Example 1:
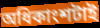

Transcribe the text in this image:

অধিকাংশটাই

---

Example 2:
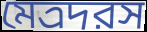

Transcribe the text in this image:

মেত্রদরস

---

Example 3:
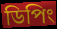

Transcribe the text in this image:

ডিপিং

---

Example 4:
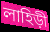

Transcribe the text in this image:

লাহিড়ী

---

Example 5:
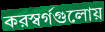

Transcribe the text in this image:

করস্বর্গগুলোয়